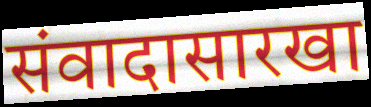
संवादासारखा